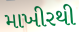
માખીરથી